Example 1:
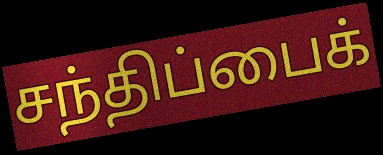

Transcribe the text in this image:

சந்திப்பைக்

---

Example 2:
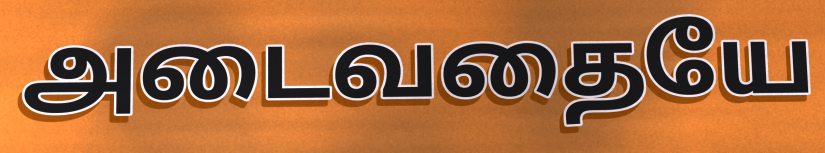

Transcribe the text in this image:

அடைவதையே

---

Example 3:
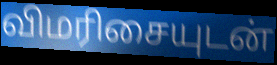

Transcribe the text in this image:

விமரிசையுடன்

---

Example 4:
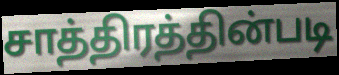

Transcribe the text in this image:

சாத்திரத்தின்படி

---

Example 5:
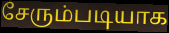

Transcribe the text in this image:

சேரும்படியாக